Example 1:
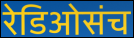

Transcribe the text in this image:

रेडिओसंच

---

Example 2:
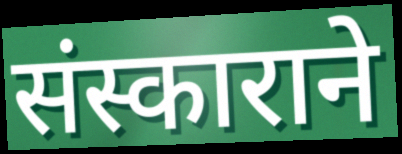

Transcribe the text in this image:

संस्काराने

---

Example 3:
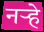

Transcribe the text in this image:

नऱ्हे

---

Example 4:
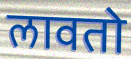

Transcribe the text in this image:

लावतो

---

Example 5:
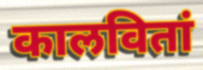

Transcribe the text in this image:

कालवितां